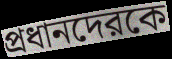
প্রধানদেরকে